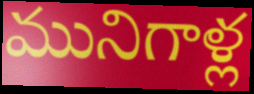
మునిగాళ్ల